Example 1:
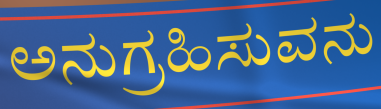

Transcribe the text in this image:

ಅನುಗ್ರಹಿಸುವನು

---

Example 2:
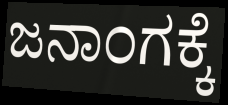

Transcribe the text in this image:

ಜನಾಂಗಕ್ಕೆ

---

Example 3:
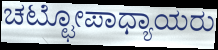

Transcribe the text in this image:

ಚಟ್ಟೋಪಾಧ್ಯಾಯರು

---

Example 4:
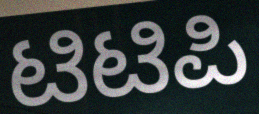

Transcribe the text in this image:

ಟಿಟಿಪಿ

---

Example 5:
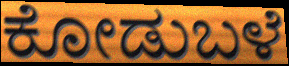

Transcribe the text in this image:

ಕೋಡುಬಳೆ